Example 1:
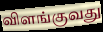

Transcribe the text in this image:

விளங்குவது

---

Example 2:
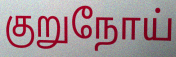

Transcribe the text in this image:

குறுநோய்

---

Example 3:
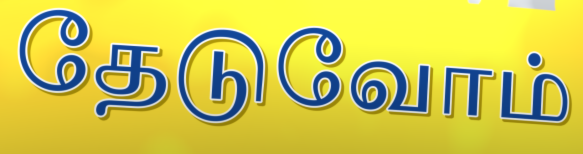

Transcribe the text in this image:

தேடுவோம்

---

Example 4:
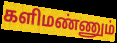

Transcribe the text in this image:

களிமண்ணும்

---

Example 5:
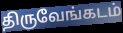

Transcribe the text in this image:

திருவேங்கடம்